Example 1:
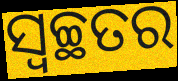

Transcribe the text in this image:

ସ୍ଵଚ୍ଛତର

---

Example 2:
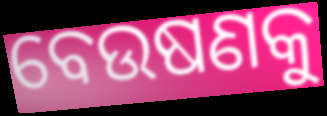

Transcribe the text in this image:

ବେଉଷଣକୁ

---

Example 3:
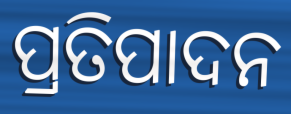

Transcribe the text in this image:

ପ୍ରତିପାଦନ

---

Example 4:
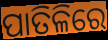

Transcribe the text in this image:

ପାତିଳିରେ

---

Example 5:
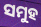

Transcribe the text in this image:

ସମୁହ